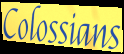
Colossians